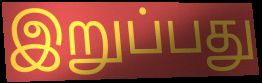
இறுப்பது